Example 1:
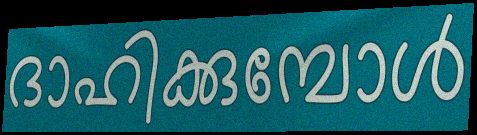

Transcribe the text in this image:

ദാഹിക്കുമ്പോൾ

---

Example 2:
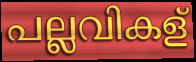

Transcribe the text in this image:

പല്ലവികള്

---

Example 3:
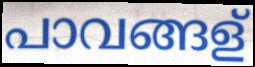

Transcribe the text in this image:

പാവങ്ങള്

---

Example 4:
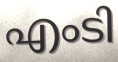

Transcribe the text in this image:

എംടി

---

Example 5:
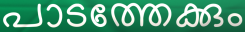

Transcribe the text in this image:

പാടത്തേക്കും